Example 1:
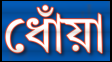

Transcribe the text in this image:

ধোঁয়া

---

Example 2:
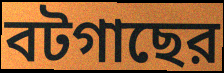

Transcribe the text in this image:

বটগাছের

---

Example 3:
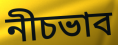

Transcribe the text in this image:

নীচভাব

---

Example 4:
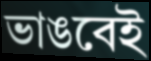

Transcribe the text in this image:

ভাঙবেই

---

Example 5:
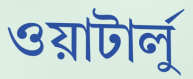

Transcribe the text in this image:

ওয়াটার্লু